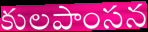
కులపాంసన